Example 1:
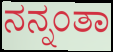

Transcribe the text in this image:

ನನ್ನಂತಾ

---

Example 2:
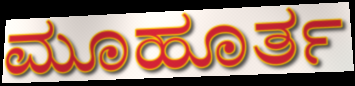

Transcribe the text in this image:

ಮೂಹೂರ್ತ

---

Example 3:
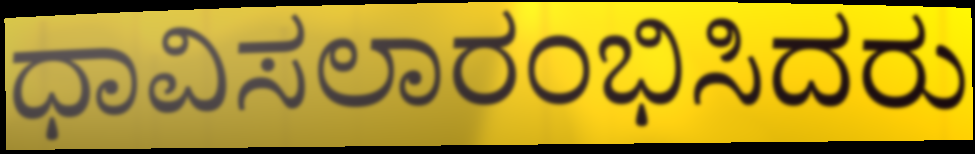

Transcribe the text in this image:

ಧಾವಿಸಲಾರಂಭಿಸಿದರು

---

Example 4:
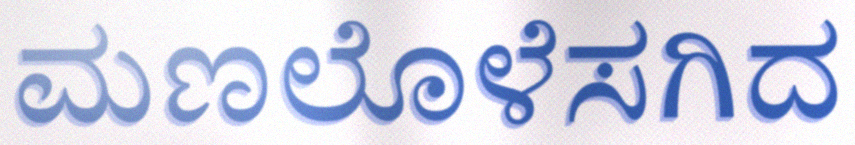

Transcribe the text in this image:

ಮಣಲೊಳೆಸಗಿದ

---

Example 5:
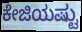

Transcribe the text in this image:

ಕೇಜಿಯಷ್ಟು